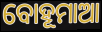
ବୋହୂମାଆ